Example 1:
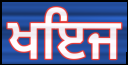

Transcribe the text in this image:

ਖਇਜ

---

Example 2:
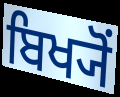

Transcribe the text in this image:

ਬਿਖ੍ਯੋਂ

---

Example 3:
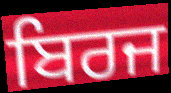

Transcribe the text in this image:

ਬਿਰਜ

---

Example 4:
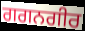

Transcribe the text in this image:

ਗਗਨਗੀਰ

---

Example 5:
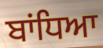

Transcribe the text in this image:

ਬਾਂਧਿਆ